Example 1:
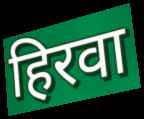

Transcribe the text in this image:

हिरवा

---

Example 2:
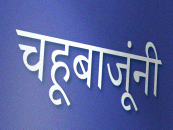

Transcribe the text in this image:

चहूबाजूंनी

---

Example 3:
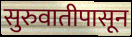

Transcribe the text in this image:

सुरुवातीपासून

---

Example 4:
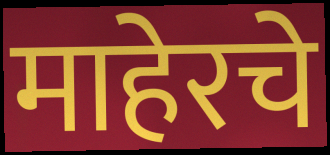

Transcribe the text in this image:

माहेरचे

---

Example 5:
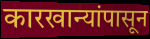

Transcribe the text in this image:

कारखान्यांपासून